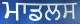
ਮਾਡਲਸ